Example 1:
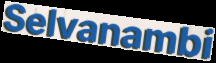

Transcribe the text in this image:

Selvanambi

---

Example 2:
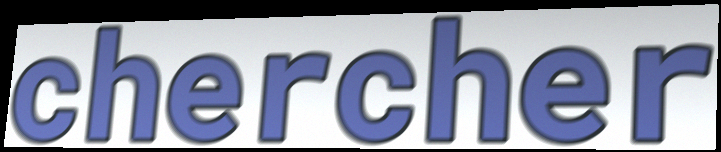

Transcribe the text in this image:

chercher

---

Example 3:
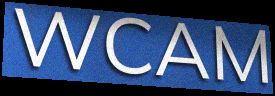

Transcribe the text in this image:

WCAM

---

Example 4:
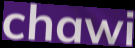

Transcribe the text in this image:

chawi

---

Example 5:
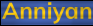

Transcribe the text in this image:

Anniyan